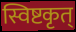
स्विष्टकृत्